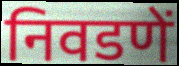
निवडणें